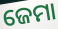
ଜେମା